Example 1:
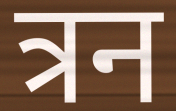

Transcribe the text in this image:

त्रन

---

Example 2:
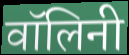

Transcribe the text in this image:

वॉलिनी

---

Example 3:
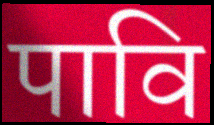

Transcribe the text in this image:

पावि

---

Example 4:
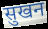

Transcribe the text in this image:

सुखन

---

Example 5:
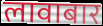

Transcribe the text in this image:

लावाबार